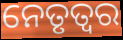
ନେତୃତ୍ଵର